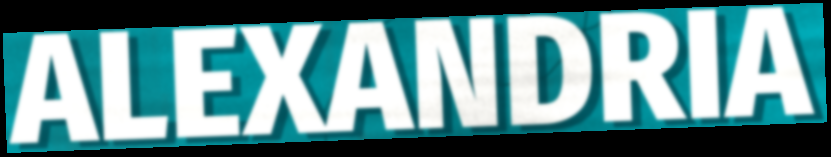
ALEXANDRIA